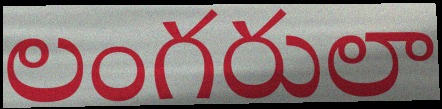
లంగరులా